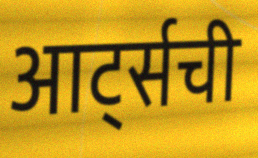
आर्ट्सची